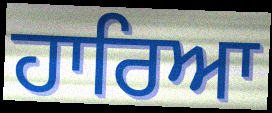
ਹਾਰਿਆ